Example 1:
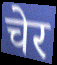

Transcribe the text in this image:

चेर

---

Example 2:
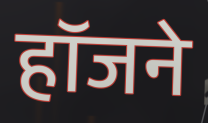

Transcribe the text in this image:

हॉजने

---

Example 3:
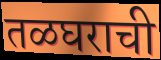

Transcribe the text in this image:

तळघराची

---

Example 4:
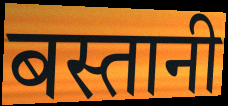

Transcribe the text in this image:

बस्तानी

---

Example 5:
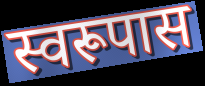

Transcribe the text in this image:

स्वरूपास